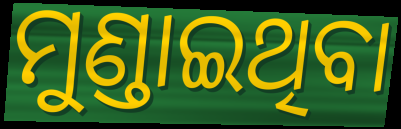
ମୁଣ୍ଡାଇଥିବା